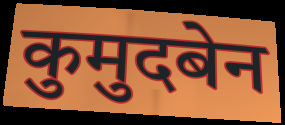
कुमुदबेन